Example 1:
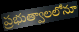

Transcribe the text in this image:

ప్రభుత్వాలలోనూ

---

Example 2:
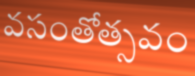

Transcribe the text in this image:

వసంతోత్సవం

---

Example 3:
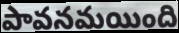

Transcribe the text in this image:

పావనమయింది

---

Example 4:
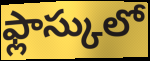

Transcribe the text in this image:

ఫ్లాస్కులో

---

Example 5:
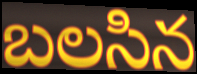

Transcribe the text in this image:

బలసిన